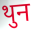
थुन